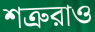
শত্রুরাও